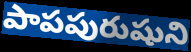
పాపపురుషుని